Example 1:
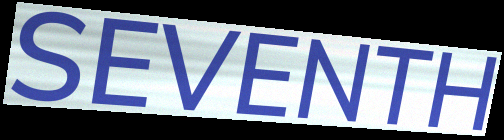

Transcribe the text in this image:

SEVENTH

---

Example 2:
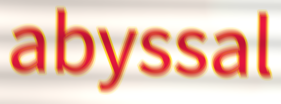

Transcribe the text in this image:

abyssal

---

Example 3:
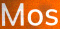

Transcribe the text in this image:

Mos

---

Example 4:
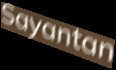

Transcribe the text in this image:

Sayantan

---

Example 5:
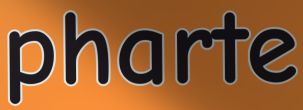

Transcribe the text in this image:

pharte